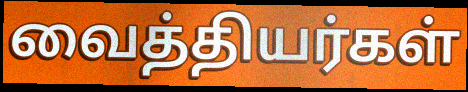
வைத்தியர்கள்